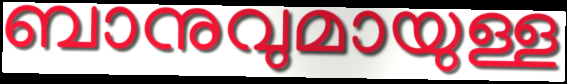
ബാനുവുമായുള്ള